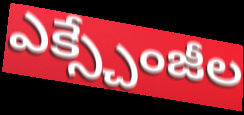
ఎక్స్చేంజీల